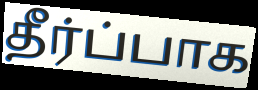
தீர்ப்பாக